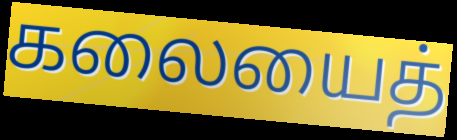
கலையைத்